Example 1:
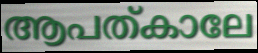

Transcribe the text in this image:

ആപത്കാലേ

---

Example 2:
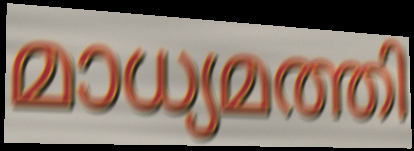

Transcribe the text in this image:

മാധ്യമത്തി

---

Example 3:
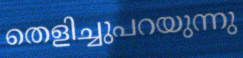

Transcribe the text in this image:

തെളിച്ചുപറയുന്നു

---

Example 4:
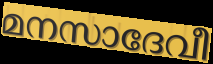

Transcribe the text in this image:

മനസാദേവീ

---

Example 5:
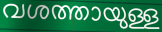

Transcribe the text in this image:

വശത്തായുള്ള